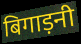
बिगाड़नी